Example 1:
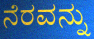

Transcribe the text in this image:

ನೆರವನ್ನು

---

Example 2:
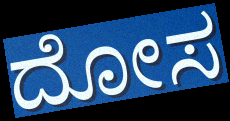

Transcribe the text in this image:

ದೋಸ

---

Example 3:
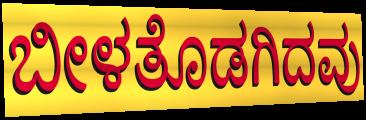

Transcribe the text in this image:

ಬೀಳತೊಡಗಿದವು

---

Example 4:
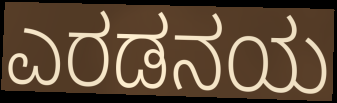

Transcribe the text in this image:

ಎರಡನಯ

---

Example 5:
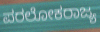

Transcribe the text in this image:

ಪರಲೋಕರಾಜ್ಯ